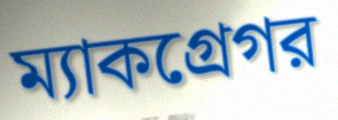
ম্যাকগ্রেগর